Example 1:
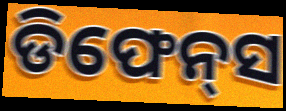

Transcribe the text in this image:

ଡିଫେନ୍‌ସ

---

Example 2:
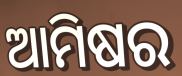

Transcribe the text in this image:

ଆମିଷର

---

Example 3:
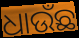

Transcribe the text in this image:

ଧାଉଁଛ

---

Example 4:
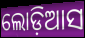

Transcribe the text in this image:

ଲୋଡ଼ିଆସ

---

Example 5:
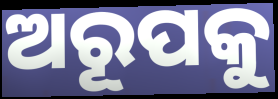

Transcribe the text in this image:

ଅରୂପକୁ